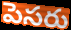
పెసరు